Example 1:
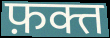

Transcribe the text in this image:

फ़क्त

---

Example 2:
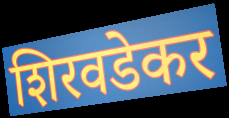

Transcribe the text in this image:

शिरवडेकर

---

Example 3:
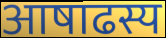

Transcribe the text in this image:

आषाढस्य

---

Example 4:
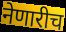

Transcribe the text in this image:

नेणारीच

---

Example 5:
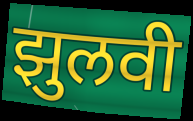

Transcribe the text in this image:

झुलवी